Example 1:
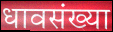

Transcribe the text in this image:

धावसंख्या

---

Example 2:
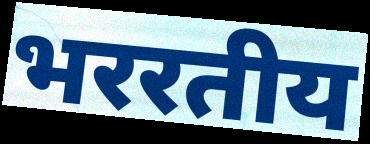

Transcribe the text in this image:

भररतीय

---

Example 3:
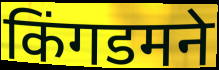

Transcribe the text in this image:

किंगडमने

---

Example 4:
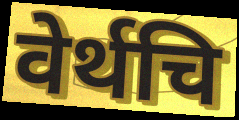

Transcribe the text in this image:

वेर्थचि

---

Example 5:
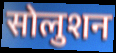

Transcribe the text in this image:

सोलुशन